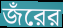
জঁরের